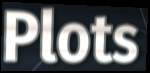
Plots